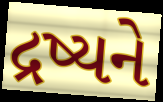
દ્રષ્યને